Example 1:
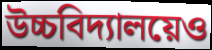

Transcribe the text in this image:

উচ্চবিদ্যালয়েও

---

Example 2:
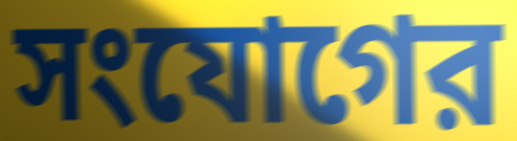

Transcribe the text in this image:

সংযোগের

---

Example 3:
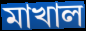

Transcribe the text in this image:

মাখাল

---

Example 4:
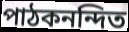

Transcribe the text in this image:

পাঠকনন্দিত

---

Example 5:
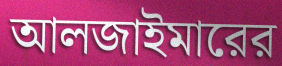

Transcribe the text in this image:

আলজাইমারের